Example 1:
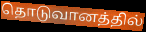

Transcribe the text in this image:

தொடுவானத்தில்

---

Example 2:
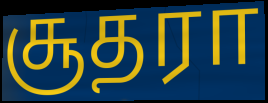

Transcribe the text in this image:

சூதரா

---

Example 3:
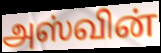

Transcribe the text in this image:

அஸ்வின்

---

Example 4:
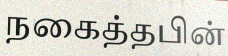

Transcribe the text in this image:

நகைத்தபின்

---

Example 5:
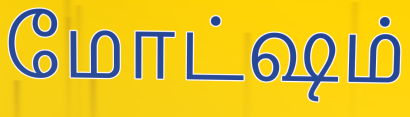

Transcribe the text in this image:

மோட்ஷம்